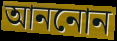
আননোন